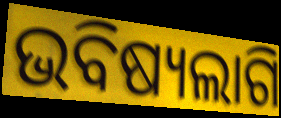
ଭବିଷ୍ୟଲାଗି